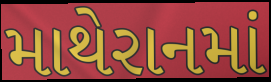
માથેરાનમાં